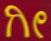
ಗೀ